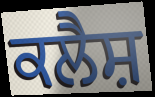
ਕਲੈਸ਼